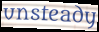
unsteady